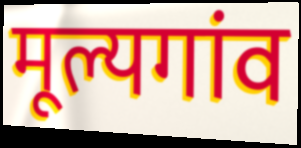
मूल्यगांव